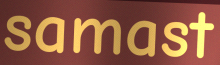
samast